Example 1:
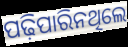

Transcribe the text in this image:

ପଢ଼ିପାରିନଥିଲେ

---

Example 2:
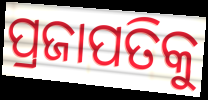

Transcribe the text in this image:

ପ୍ରଜାପତିକୁ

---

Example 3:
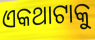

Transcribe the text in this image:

ଏକଥାଟାକୁ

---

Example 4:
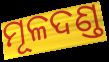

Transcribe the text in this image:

ମୂଳଦଣ୍ଡ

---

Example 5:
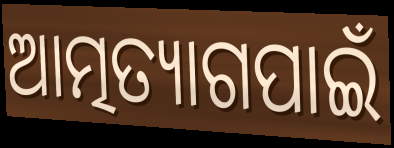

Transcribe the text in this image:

ଆତ୍ମତ୍ୟାଗପାଇଁ